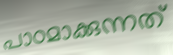
പാഠമാക്കുന്നത്